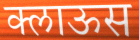
क्लाऊस